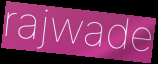
rajwade